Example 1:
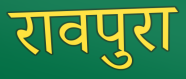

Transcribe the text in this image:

रावपुरा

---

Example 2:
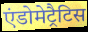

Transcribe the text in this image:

एंडोमेट्रैटिस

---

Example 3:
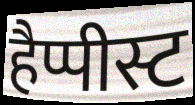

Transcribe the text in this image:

हैप्पीस्ट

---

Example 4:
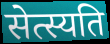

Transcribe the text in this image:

सेत्स्यति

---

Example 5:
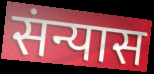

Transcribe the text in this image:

संन्यास